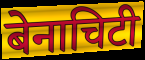
बेनाचिटी